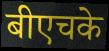
बीएचके